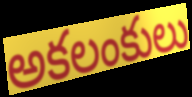
అకలంకులు